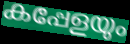
കപ്പേളയും